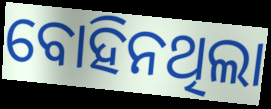
ବୋହିନଥିଲା